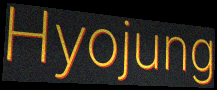
Hyojung